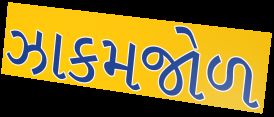
ઝાકમજોળ